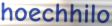
hoechhilo